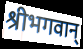
श्रीभगवान्